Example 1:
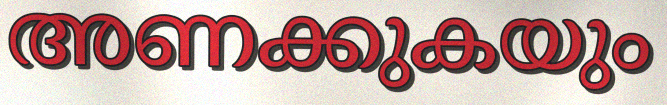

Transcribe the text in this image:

അണക്കുകയും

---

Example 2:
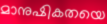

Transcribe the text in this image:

മാനുഷികതയെ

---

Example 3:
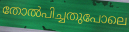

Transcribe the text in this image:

തോൽപിച്ചതുപോലെ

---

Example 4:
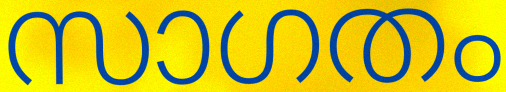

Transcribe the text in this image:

സാഗതം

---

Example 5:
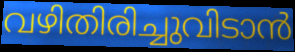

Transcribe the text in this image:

വഴിതിരിച്ചുവിടാൻ